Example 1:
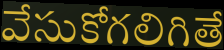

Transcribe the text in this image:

వేసుకోగలిగితే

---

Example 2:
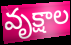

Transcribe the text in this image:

వృక్షాల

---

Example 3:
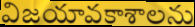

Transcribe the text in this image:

విజయావకాశాలను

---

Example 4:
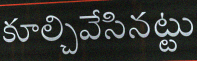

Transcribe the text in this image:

కూల్చివేసినట్టు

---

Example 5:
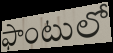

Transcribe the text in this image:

ఫాంటులో